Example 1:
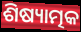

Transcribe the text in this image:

ଶିଷ୍ୟାତ୍ମକ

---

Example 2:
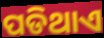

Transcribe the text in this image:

ପଡିଥାଏ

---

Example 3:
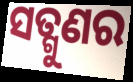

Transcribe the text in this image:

ସତ୍ଗୁଣର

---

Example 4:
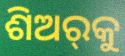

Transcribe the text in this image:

ଶିଅର୍‌କୁ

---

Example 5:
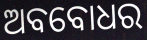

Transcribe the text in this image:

ଅବବୋଧର